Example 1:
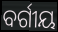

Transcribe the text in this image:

ବର୍ଗୀୟ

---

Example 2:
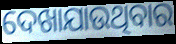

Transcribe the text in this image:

ଦେଖାଯାଉଥିବାର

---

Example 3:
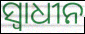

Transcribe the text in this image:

ସ୍ବାଧୀନ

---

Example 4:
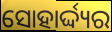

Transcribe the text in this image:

ସୋହାର୍ଦ୍ଦ୍ୟର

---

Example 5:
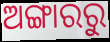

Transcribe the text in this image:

ଅଙ୍ଗାରରୁ